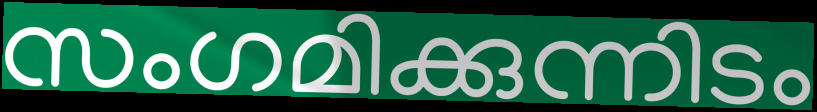
സംഗമിക്കുന്നിടം